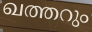
ഖത്തറും